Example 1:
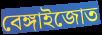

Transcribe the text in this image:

বেঙ্গাইজোত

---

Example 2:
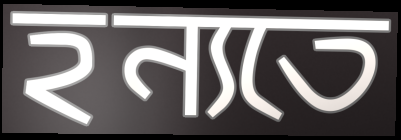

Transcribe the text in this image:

হন্যতে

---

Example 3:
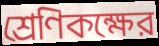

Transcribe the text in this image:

শ্রেণিকক্ষের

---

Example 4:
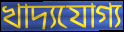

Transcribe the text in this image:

খাদ্যযোগ্য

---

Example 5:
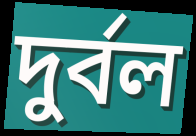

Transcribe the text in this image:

দুর্বল